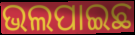
ଭଲପାଇଛ